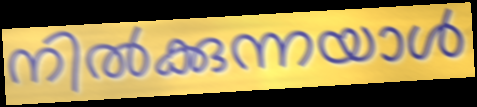
നിൽക്കുന്നയാൾ